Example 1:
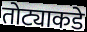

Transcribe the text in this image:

तोट्याकडे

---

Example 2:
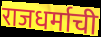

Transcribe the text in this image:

राजधर्माची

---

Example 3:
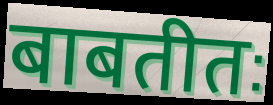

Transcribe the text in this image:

बाबतीतः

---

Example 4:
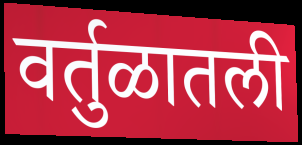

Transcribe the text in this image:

वर्तुळातली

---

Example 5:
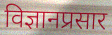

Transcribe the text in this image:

विज्ञानप्रसार